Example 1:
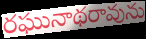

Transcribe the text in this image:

రఘునాథరావును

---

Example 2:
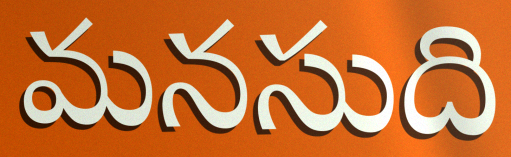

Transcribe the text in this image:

మనసుది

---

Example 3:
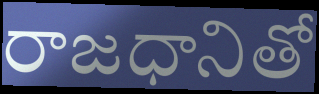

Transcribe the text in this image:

రాజధానితో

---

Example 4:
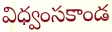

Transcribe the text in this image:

విధ్వంసకాండ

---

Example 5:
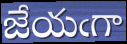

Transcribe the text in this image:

జేయఁగా